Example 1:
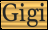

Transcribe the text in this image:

Gigi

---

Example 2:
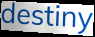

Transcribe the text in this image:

destiny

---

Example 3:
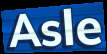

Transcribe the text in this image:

Asle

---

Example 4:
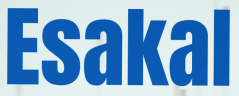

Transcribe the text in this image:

Esakal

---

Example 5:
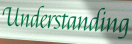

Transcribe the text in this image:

Understanding